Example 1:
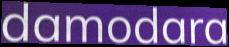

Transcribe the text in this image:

damodara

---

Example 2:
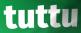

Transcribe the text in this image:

tuttu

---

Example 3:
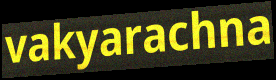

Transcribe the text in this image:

vakyarachna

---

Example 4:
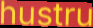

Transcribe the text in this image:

hustru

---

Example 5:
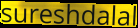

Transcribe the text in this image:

sureshdalal